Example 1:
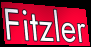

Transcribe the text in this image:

Fitzler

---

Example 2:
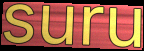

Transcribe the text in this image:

suru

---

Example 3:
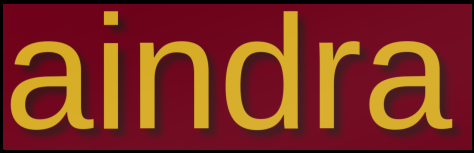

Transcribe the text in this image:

aindra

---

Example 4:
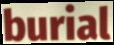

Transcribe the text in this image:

burial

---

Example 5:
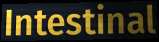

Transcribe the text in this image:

Intestinal